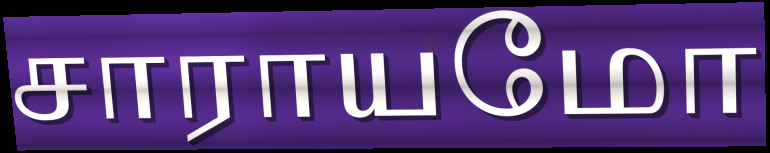
சாராயமோ